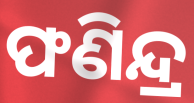
ଫଣିନ୍ଦ୍ର